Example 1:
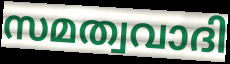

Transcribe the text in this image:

സമത്വവാദി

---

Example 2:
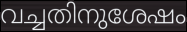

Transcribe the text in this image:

വച്ചതിനുശേഷം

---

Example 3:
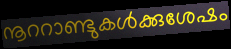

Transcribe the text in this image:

നൂററാണ്ടുകൾക്കുശേഷം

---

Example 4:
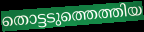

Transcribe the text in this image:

തൊട്ടടുത്തെത്തിയ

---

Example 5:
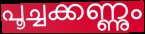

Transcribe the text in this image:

പൂച്ചക്കണ്ണും